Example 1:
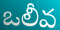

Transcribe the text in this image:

ఒలీవ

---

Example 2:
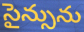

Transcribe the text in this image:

సైన్సును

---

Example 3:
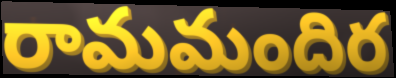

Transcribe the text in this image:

రామమందిర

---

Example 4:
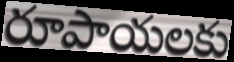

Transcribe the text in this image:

రూపాయలకు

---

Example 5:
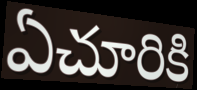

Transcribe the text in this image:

ఏచూరికి